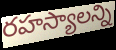
రహస్యాలన్ని